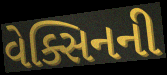
વેક્સિનની